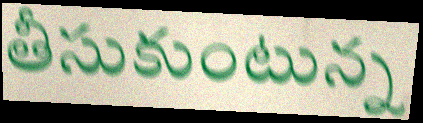
తీసుకుంటున్న